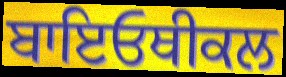
ਬਾਇਓਥੀਕਲ